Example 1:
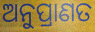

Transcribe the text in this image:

ଅନୁପ୍ରାଣତ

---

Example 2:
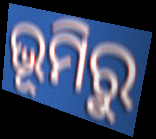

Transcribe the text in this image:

ଭୂମିରୁ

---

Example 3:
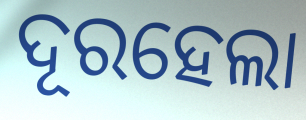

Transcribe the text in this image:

ଦୂରହେଲା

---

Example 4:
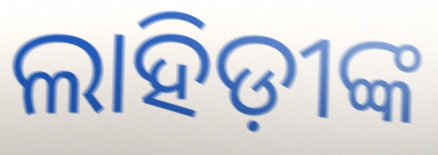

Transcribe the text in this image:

ଲାହିଡ଼ୀଙ୍କ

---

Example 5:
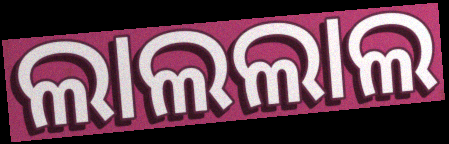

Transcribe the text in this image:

ଲାଲଲାଲ